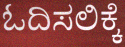
ಓದಿಸಲಿಕ್ಕೆ